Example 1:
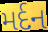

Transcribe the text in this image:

મર્દન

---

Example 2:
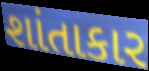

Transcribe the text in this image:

શાંતાકાર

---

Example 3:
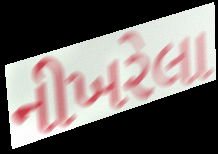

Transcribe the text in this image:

નીખરેલા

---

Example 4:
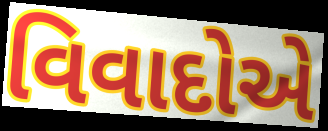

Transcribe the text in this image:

વિવાદોએ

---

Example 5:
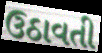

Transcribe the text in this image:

ઉઠાવતી